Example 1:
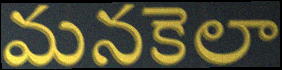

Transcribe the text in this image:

మనకెలా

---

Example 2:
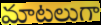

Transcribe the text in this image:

మాటలుగా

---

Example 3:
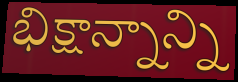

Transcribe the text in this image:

భిక్షాన్నాన్ని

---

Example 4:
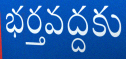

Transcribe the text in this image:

భర్తవద్దకు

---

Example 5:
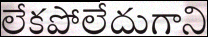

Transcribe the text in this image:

లేకపోలేదుగాని